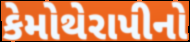
કેમોથેરાપીનો